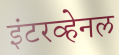
इंटरव्हेनल